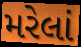
મરેલાં